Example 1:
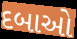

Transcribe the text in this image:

દબાઓ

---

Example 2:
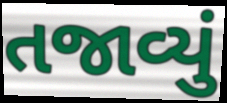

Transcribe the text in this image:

તજાવ્યું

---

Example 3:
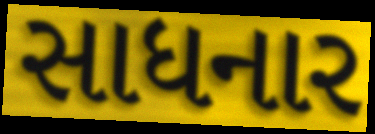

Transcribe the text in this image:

સાધનાર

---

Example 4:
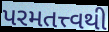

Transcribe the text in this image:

પરમતત્ત્વથી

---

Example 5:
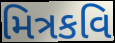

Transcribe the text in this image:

મિત્રકવિ